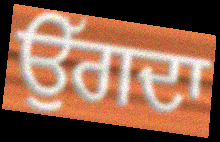
ਉੱਗਦਾ